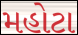
મહોટા